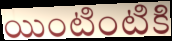
యింటింటికి